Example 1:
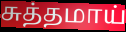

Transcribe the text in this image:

சுத்தமாய்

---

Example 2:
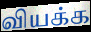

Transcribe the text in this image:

வியக்க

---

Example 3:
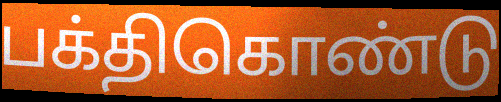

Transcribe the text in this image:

பக்திகொண்டு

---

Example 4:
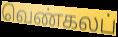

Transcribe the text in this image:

வெண்கலப்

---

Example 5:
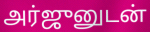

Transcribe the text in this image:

அர்ஜுனுடன்